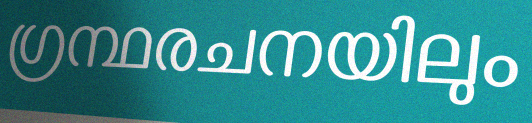
ഗ്രന്ഥരചനയിലും